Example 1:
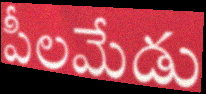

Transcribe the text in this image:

పీలమేడు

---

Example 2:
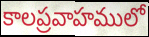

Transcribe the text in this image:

కాలప్రవాహములో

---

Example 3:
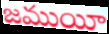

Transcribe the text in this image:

జముయీ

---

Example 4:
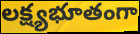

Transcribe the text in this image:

లక్ష్యభూతంగా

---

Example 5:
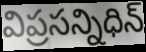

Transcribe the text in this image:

విప్రసన్నిధిన్